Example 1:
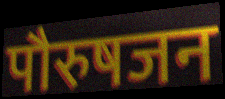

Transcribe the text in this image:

पौरुषजन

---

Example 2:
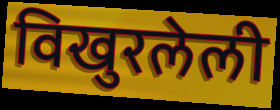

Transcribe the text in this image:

विखुरलेली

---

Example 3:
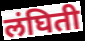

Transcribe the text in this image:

लंघिती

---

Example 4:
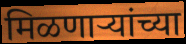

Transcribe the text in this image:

मिळणाऱ्यांच्या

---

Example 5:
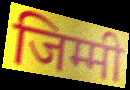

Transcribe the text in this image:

जिम्मी